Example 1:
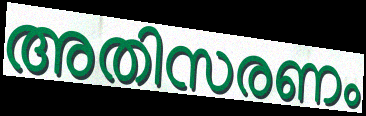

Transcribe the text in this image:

അതിസരണം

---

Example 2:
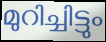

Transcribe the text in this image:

മുറിച്ചിട്ടും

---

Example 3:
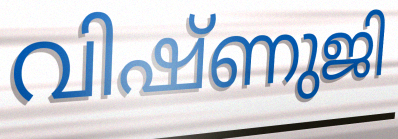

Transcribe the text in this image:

വിഷ്ണുജി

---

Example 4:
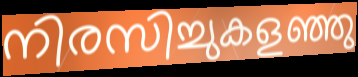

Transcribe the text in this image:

നിരസിച്ചുകളഞ്ഞു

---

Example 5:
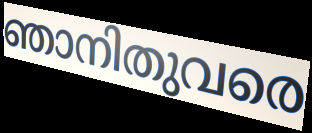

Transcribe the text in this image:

ഞാനിതുവരെ